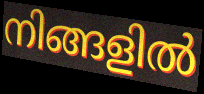
നിങ്ങളിൽ